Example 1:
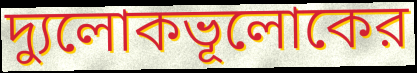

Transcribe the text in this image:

দ্যুলোকভূলোকের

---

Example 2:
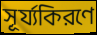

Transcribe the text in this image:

সূর্য্যকিরণে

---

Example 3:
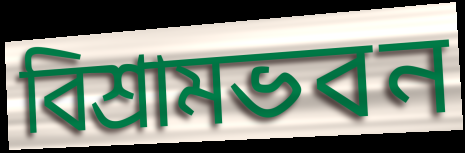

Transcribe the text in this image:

বিশ্রামভবন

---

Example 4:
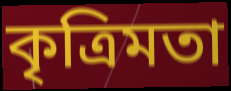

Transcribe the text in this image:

কৃত্রিমতা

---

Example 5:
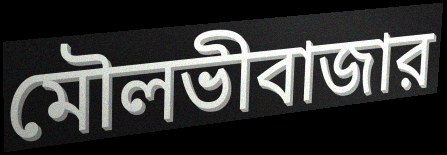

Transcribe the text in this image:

মৌলভীবাজার